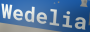
Wedelia